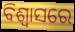
ବିଶ୍ୱାସରେ